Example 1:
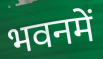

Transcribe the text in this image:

भवनमें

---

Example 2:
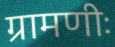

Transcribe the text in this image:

ग्रामणीः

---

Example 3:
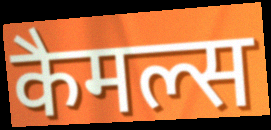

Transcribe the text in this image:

कैमल्स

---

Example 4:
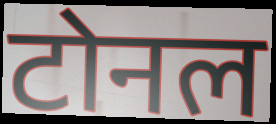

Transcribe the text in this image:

टोनल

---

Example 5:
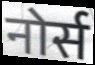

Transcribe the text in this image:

नोर्स